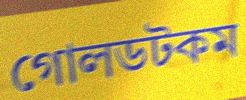
গোলডটকম